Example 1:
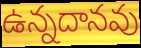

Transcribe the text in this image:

ఉన్నదానవు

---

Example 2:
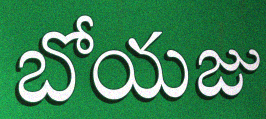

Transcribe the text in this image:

బోయజు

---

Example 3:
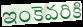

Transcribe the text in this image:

ఇంకెవరికి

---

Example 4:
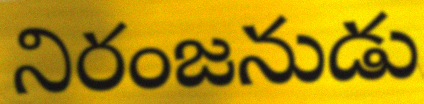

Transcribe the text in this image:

నిరంజనుడు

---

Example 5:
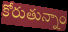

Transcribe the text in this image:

కోరుతున్నాం